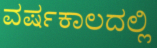
ವರ್ಷಕಾಲದಲ್ಲಿ